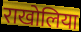
राखोलिया